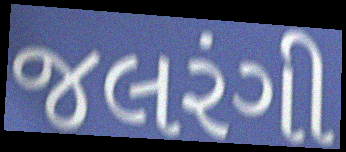
જલરંગી